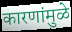
कारणांमुळे